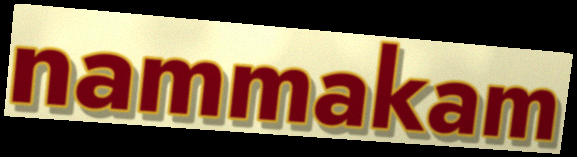
nammakam